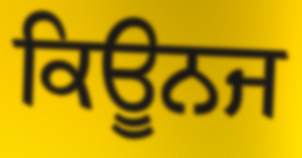
ਕਿਊਨਜ